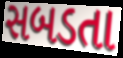
સબડતા